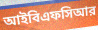
আইবিএফসিআর